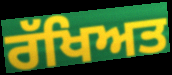
ਰੱਖਿਅਤ